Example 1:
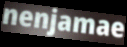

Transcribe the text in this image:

nenjamae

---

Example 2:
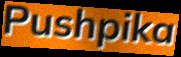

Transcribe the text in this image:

Pushpika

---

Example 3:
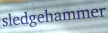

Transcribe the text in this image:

sledgehammer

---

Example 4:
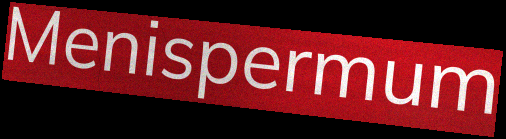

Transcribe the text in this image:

Menispermum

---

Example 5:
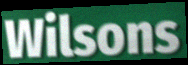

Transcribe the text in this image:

Wilsons